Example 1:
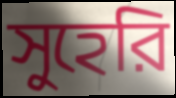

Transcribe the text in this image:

সুহেরি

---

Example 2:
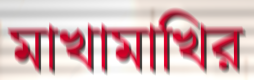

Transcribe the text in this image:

মাখামাখির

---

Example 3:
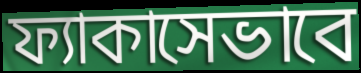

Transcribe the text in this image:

ফ্যাকাসেভাবে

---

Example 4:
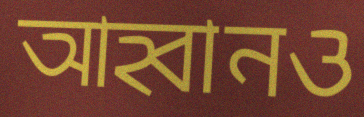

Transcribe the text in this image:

আহ্বানও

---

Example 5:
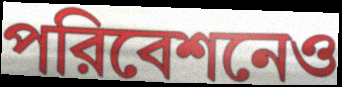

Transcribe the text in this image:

পরিবেশনেও